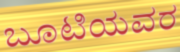
ಬೂಟಿಯವರ